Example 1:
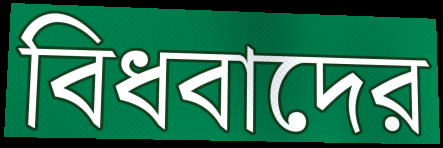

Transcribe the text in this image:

বিধবাদের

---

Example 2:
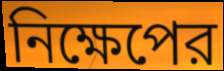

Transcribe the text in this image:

নিক্ষেপের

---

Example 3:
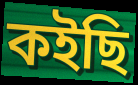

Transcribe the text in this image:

কইছি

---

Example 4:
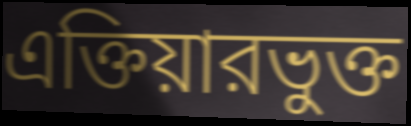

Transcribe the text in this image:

এক্তিয়ারভুক্ত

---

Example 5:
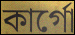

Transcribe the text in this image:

কার্গো